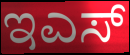
ಇಎಸ್